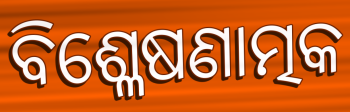
ବିଶ୍ଳେଷଣାତ୍ମକ